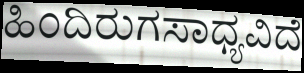
ಹಿಂದಿರುಗಸಾಧ್ಯವಿದೆ